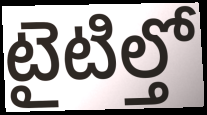
టైటిల్తో